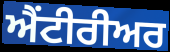
ਐਂਟੀਰੀਅਰ